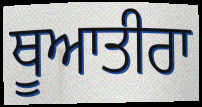
ਥੂਆਤੀਰਾ